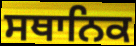
ਸਥਾਨਿਕ